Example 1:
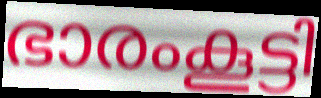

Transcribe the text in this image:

ഭാരംകൂട്ടി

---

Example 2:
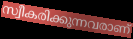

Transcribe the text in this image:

സ്വീകരിക്കുന്നവരാണ്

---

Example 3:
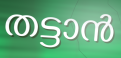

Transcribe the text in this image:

തട്ടാൻ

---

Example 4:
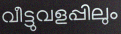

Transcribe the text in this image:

വീട്ടുവളപ്പിലും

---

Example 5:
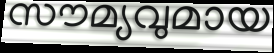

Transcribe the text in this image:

സൗമ്യവുമായ